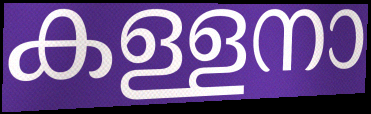
കള്ളനാ